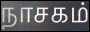
நாசகம்